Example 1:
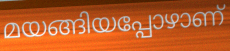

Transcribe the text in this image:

മയങ്ങിയപ്പോഴാണ്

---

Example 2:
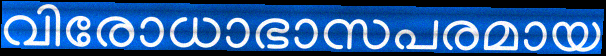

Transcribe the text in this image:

വിരോധാഭാസപരമായ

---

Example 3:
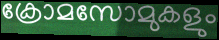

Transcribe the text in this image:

ക്രോമസോമുകളും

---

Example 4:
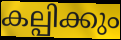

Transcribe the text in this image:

കല്പിക്കും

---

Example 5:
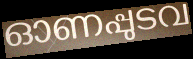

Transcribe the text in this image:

ഓണപ്പുടവ